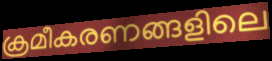
ക്രമീകരണങ്ങളിലെ